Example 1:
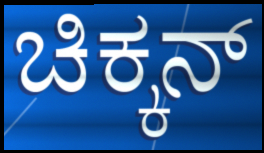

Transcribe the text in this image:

ಚಿಕ್ಕನ್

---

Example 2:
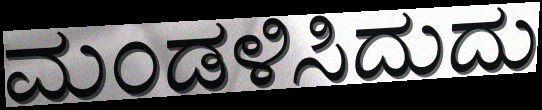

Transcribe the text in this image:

ಮಂಡಳಿಸಿದುದು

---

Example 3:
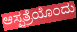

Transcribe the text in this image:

ಆಸ್ಪತ್ರೆಯೊಂದು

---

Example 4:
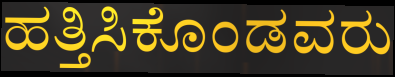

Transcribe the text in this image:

ಹತ್ತಿಸಿಕೊಂಡವರು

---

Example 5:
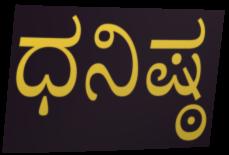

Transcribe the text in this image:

ಧನಿಷ್ಠ